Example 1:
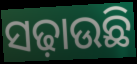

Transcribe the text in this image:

ସଢ଼ାଉଛି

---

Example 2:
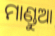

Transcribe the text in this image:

ମାଣ୍ଡୁଆ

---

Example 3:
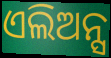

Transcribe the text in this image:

ଏଲିଅନ୍ସ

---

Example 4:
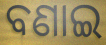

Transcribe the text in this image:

ବଣାଇ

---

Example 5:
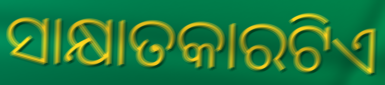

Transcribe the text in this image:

ସାକ୍ଷାତକାରଟିଏ